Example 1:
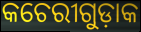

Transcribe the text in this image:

କଚେରୀଗୁଡ଼ାକ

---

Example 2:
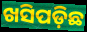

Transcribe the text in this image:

ଖସିପଡ଼ିଛ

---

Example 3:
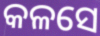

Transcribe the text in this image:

କଳସେ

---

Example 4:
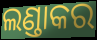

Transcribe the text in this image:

ଲଣ୍ଡାକର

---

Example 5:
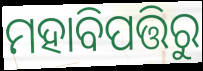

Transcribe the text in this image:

ମହାବିପତ୍ତିରୁ